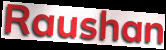
Raushan